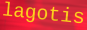
lagotis